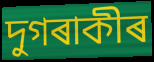
দুগৰাকীৰ